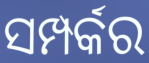
ସମ୍ପର୍କର